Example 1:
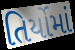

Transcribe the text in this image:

તિર્યોમાં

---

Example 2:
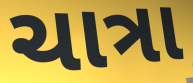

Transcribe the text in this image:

ચાત્રા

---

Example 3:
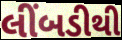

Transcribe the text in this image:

લીંબડીથી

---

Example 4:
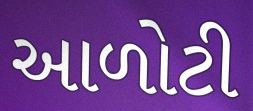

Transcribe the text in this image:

આળોટી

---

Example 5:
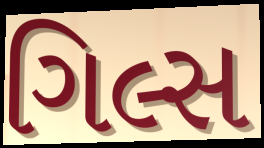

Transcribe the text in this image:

ગિલ્સ